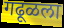
गढूळला